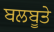
ਬਲਬੂਤੇ